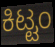
ಕಿಟ್ಟಂ